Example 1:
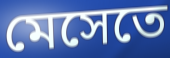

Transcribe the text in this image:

মেসেতে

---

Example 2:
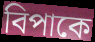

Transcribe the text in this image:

বিপাকে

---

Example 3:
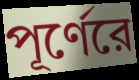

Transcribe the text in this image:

পূর্ণেরে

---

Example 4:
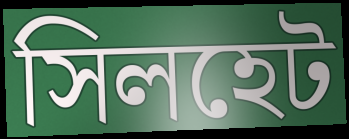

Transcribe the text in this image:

সিলহেট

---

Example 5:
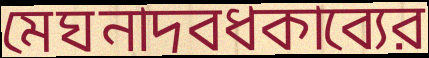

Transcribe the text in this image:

মেঘনাদবধকাব্যের